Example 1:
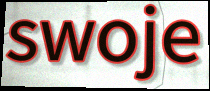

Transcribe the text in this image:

swoje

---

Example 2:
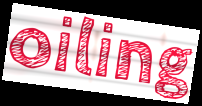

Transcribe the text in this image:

oiling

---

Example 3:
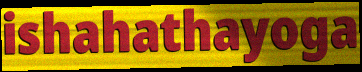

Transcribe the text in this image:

ishahathayoga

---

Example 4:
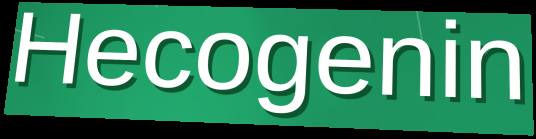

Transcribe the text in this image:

Hecogenin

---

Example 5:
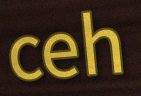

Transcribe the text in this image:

ceh